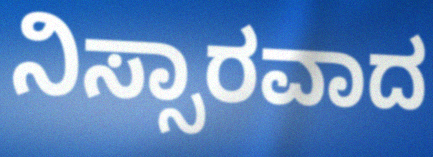
ನಿಸ್ಸಾರವಾದ